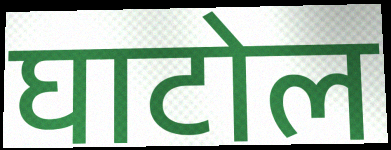
घाटोल